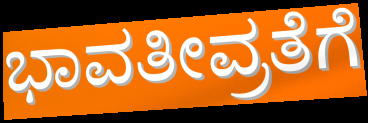
ಭಾವತೀವ್ರತೆಗೆ